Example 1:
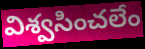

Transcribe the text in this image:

విశ్వసించలేం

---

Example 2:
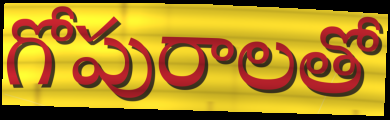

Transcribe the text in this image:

గోపురాలతో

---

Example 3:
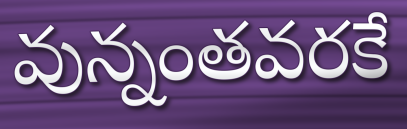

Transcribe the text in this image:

వున్నంతవరకే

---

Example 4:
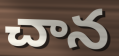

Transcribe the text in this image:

చాన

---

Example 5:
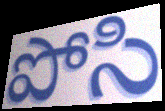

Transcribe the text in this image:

పోసి